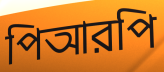
পিআরপি